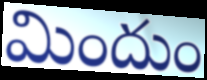
మిందుం